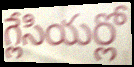
గ్లేసియర్లో